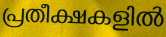
പ്രതീക്ഷകളിൽ